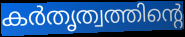
കർതൃത്വത്തിന്റെ